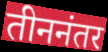
तीननंतर